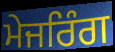
ਮੇਜਰਿੰਗ